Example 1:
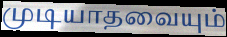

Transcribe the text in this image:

முடியாதவையும்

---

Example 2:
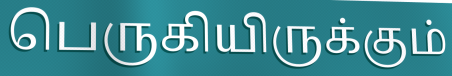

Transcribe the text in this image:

பெருகியிருக்கும்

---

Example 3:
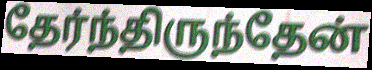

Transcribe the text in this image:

தேர்ந்திருந்தேன்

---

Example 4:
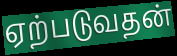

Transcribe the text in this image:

ஏற்படுவதன்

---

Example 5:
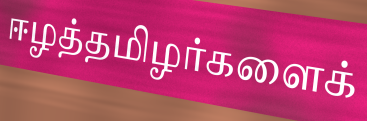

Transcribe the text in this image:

ஈழத்தமிழர்களைக்